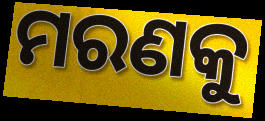
ମରଣକୁ